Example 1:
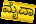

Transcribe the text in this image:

ಮೈದಾ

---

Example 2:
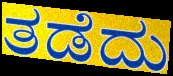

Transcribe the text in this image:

ತಡೆದು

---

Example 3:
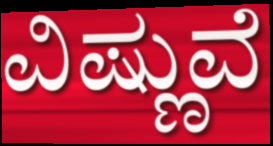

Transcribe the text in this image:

ವಿಷ್ಣುವೆ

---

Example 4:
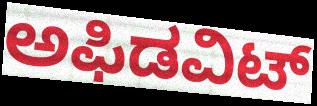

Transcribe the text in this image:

ಅಫಿಡವಿಟ್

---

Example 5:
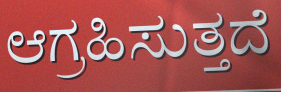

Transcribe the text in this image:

ಆಗ್ರಹಿಸುತ್ತದೆ